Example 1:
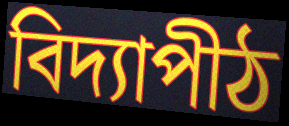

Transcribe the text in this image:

বিদ্যাপীঠ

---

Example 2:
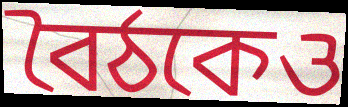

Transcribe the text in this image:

বৈঠকেও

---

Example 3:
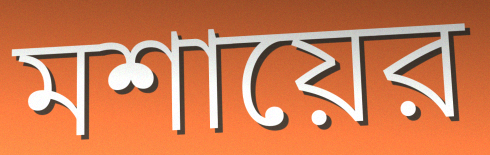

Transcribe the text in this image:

মশায়ের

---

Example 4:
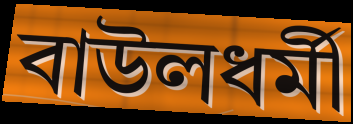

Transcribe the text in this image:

বাউলধর্মী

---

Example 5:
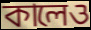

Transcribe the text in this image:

কালেও